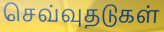
செவ்வுதடுகள்